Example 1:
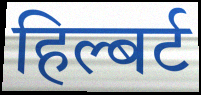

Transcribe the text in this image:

हिल्बर्ट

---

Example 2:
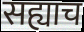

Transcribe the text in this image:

सह्याच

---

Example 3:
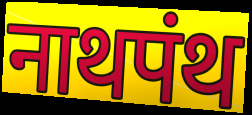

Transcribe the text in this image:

नाथपंथ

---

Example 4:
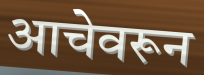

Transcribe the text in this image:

आचेवरून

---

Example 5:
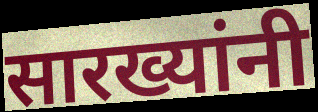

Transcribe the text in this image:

सारख्यांनी